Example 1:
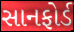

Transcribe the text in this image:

સાનફોર્ડ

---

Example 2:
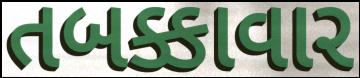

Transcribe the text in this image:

તબક્કાવાર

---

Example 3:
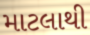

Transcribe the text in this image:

માટલાથી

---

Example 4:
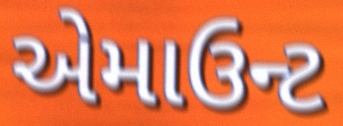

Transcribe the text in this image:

એમાઉન્ટ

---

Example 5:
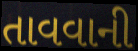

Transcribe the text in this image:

તાવવાની